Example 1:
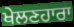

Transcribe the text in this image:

ਖੇਲਣਹਾਰਾ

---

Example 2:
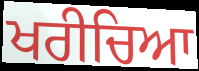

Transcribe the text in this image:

ਖਰੀਚਿਆ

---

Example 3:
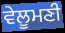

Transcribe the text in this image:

ਵੇਲੂਮਣੀ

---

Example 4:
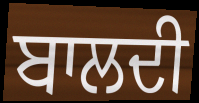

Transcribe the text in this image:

ਬਾਲਦੀ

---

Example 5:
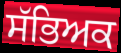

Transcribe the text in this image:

ਸੱਭਿਅਕ